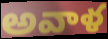
అవాళ